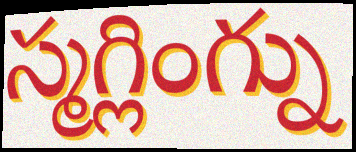
స్మగ్లింగ్ను